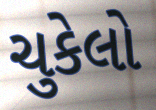
ચુકેલો